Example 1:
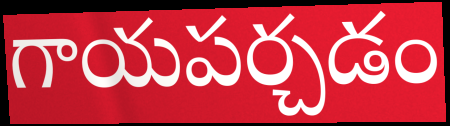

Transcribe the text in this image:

గాయపర్చడం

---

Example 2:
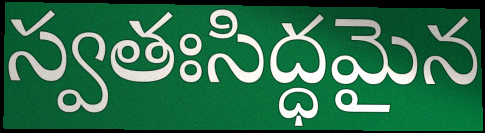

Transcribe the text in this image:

స్వతఃసిద్ధమైన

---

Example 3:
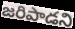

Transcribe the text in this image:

జరిపాడని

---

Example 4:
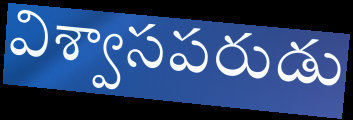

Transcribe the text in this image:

విశ్వాసపరుడు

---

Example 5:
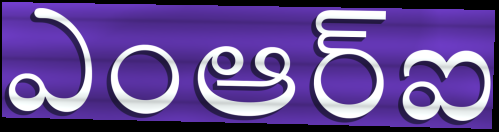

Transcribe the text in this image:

ఎంఆర్ఐ